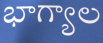
భాగ్యాల